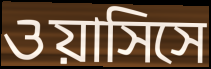
ওয়াসিসে